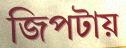
জিপটায়